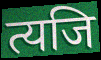
त्यजि